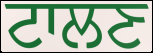
ਟਾਲਣ